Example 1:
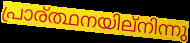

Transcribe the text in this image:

പ്രാര്ത്ഥനയില്നിന്നു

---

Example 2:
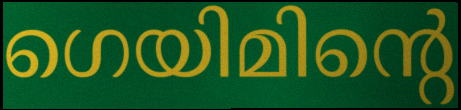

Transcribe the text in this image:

ഗെയിമിന്റെ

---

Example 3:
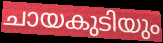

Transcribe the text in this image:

ചായകുടിയും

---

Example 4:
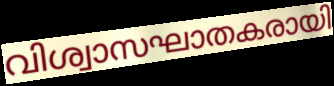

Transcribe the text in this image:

വിശ്വാസഘാതകരായി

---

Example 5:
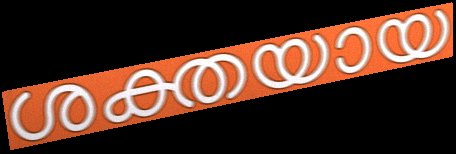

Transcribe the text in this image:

ശക്തയായ